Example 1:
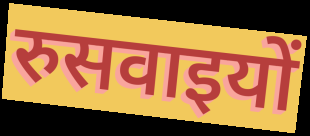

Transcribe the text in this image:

रुसवाइयों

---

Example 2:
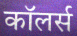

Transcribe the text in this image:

कॉलर्स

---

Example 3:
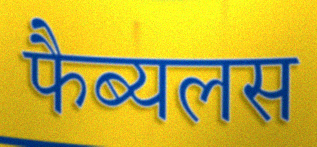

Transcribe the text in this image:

फैब्यलस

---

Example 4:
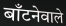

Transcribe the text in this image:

बाँटनेवाले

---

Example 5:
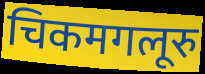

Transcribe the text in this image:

चिकमगलूरु